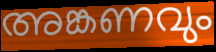
അങ്കണവും